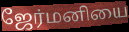
ஜேர்மனியை